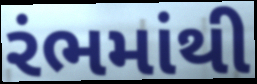
રંભમાંથી